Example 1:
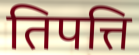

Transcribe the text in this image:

तिपत्ति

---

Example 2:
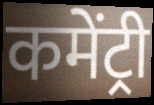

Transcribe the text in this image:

कमेंट्री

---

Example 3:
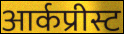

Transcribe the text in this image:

आर्कप्रीस्ट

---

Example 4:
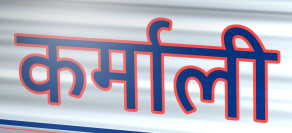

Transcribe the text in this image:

कर्माली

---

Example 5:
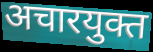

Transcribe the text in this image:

अचारयुक्त